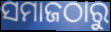
ସମାଜଠାରୁ